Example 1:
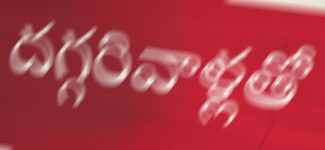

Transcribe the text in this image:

దగ్గరివాళ్లతో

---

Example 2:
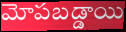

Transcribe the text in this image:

మోపబడ్డాయి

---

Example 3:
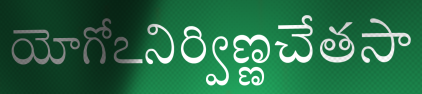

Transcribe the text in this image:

యోగోఽనిర్విణ్ణచేతసా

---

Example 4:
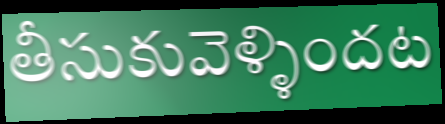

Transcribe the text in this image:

తీసుకువెళ్ళిందట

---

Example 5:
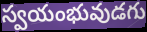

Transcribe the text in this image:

స్వయంభువుడగు